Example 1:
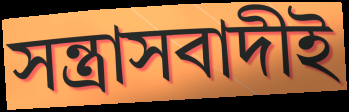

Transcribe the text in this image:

সন্ত্রাসবাদীই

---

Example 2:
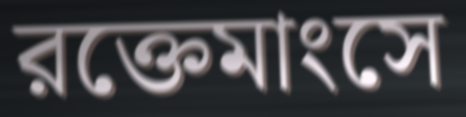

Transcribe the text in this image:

রক্তেমাংসে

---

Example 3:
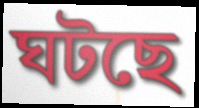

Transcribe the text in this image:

ঘটছে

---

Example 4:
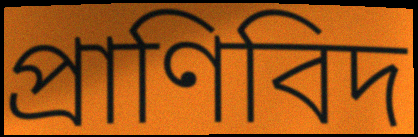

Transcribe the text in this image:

প্রাণিবিদ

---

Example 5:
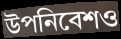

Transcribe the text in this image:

উপনিবেশও